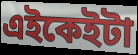
এইকেইটা